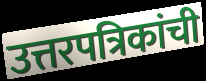
उत्तरपत्रिकांची